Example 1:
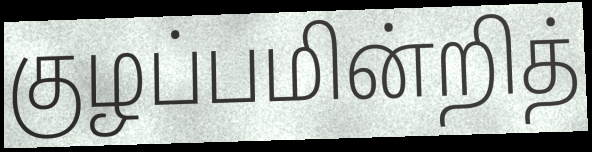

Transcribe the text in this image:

குழப்பமின்றித்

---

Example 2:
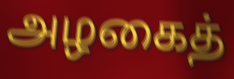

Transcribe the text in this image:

அழகைத்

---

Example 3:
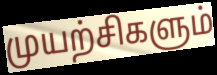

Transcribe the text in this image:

முயற்சிகளும்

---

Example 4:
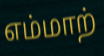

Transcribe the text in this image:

எம்மாற்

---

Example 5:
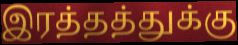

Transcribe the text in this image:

இரத்தத்துக்கு